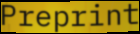
Preprint